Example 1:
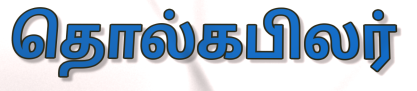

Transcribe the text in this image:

தொல்கபிலர்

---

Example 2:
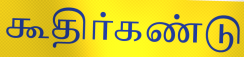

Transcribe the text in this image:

கூதிர்கண்டு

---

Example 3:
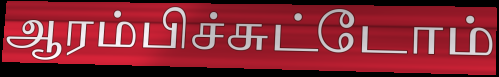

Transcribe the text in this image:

ஆரம்பிச்சுட்டோம்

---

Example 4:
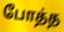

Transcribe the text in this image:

போத்த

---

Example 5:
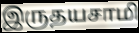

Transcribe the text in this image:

இருதயசாமி